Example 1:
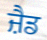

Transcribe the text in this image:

ਜ਼ੈਡ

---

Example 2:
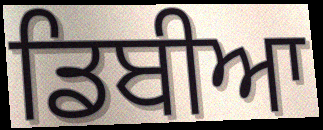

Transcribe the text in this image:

ਡਿਬੀਆ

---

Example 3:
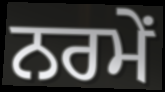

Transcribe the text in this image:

ਨਰਮੇਂ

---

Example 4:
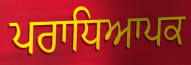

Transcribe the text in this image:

ਪਰਾਧਿਆਪਕ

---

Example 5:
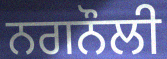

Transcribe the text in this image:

ਨਗਨੌਲੀ